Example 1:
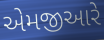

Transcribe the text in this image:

એમજીઆરે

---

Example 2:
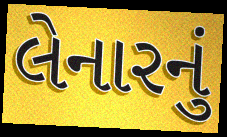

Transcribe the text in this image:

લેનારનું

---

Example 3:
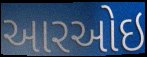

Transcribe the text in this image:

આરઓઇ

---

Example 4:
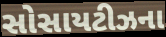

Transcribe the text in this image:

સોસાયટીઝના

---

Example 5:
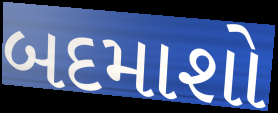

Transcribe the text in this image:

બદમાશો